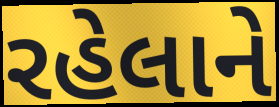
રહેલાને